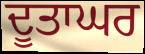
ਦੂਤਾਘਰ